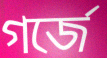
গর্জে